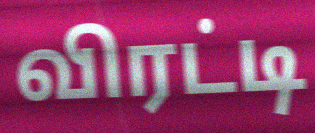
விரட்டி